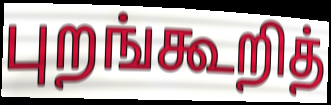
புறங்கூறித்